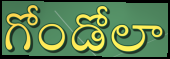
గోండోలా